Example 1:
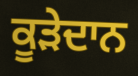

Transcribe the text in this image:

ਕੂੜੇਦਾਨ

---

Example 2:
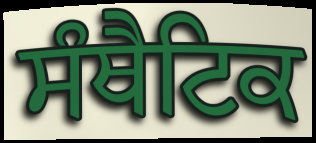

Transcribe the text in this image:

ਸੰਥੈਟਿਕ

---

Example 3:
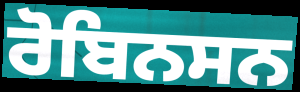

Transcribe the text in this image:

ਰੋਬਿਨਸਨ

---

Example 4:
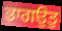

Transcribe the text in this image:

ਭਾਗਉਤੁ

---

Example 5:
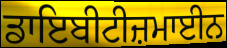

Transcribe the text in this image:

ਡਾਇਬੀਟੀਜ਼ਮਾਈਨ